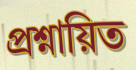
প্রশ্নায়িত